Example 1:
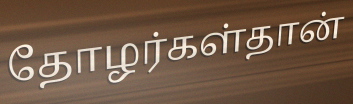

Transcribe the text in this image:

தோழர்கள்தான்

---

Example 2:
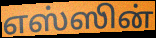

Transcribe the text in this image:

எஸ்ஸின்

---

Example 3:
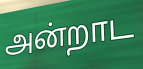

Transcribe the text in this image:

அன்றாட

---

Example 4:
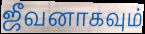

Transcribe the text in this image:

ஜீவனாகவும்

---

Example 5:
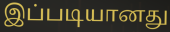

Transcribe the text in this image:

இப்படியானது